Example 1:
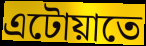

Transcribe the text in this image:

এটোয়াতে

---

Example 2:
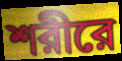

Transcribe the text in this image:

শরীরে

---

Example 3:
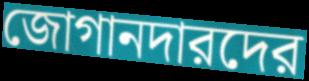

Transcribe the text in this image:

জোগানদারদের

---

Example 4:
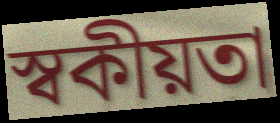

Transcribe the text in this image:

স্বকীয়তা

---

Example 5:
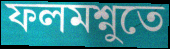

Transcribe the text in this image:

ফলমশ্নুতে